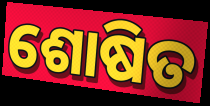
ଶୋଷିତ